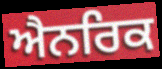
ਐਨਰਿਕ